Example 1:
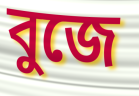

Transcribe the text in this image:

বুজে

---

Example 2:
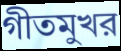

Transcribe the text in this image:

গীতমুখর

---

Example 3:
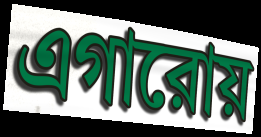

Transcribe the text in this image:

এগারোয়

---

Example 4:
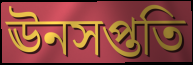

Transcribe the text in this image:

ঊনসপ্ততি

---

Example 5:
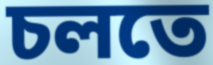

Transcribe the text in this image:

চলতে